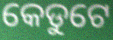
କେଡୁଟେ